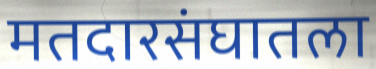
मतदारसंघातला